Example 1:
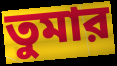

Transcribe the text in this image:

তুমার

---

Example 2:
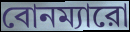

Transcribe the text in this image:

বোনম্যারো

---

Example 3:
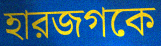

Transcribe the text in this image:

হারজগকে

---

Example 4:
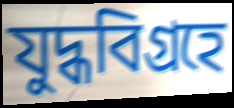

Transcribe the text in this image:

যুদ্ধবিগ্রহে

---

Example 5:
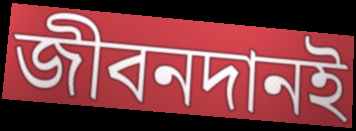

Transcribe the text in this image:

জীবনদানই